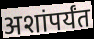
अशांपर्यंत